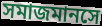
সমাজমানসে